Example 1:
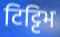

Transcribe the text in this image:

टिट्टिभ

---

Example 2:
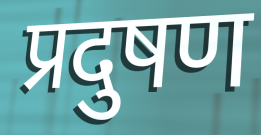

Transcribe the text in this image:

प्रदुषण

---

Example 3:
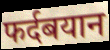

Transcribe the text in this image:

फर्दबयान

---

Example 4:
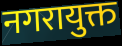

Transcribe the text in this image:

नगरायुक्त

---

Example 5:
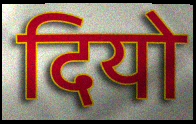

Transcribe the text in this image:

दियो